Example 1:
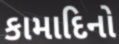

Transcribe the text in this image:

કામાદિનો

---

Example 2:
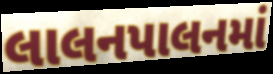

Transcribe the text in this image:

લાલનપાલનમાં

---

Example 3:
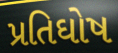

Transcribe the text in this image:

પ્રતિઘોષ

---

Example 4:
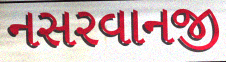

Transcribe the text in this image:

નસરવાનજી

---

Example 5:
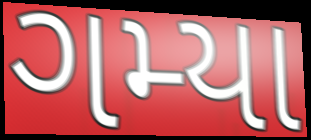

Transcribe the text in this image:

ગમ્યા